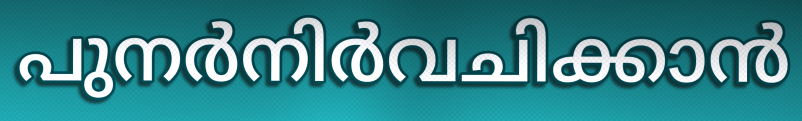
പുനർനിർവചിക്കാൻ